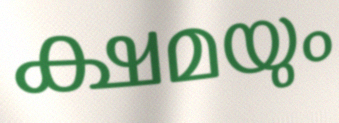
ക്ഷമയും